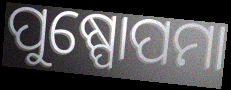
ପୁଷ୍ପୋପମା